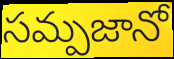
సమ్పజానో